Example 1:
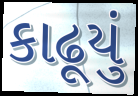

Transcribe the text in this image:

કાઢૂયું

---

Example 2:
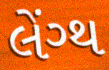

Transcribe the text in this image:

લેંગ્થ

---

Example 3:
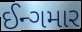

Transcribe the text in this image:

ઈન્ગમાર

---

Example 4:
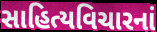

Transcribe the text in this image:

સાહિત્યવિચારનાં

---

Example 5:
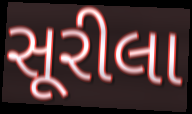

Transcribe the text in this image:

સૂરીલા